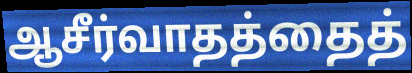
ஆசீர்வாதத்தைத்